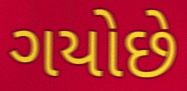
ગયોછે